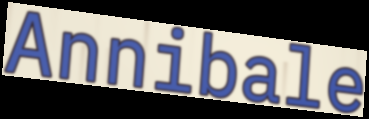
Annibale